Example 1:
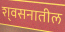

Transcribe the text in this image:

श्वसनातील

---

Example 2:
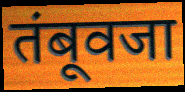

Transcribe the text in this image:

तंबूवजा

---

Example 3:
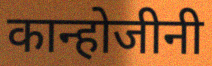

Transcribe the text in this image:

कान्होजीनी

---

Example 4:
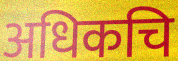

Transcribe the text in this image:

अधिकचि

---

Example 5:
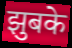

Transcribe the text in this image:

झुबके